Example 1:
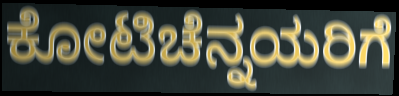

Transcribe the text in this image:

ಕೋಟಿಚೆನ್ನಯರಿಗೆ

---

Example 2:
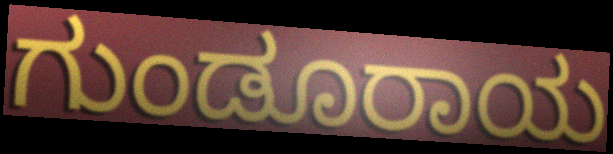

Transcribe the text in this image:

ಗುಂಡೂರಾಯ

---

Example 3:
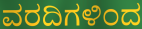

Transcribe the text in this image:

ವರದಿಗಳಿಂದ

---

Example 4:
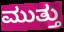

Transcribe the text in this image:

ಮುತ್ತು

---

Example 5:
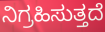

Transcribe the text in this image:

ನಿಗ್ರಹಿಸುತ್ತದೆ